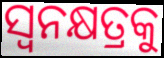
ସ୍ୱନକ୍ଷତ୍ରକୁ